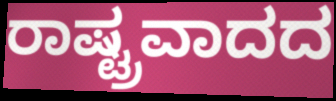
ರಾಷ್ಟ್ರವಾದದ